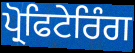
ਪ੍ਰੋਫਿਟੇਰਿੰਗ